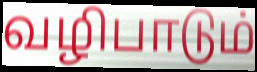
வழிபாடும்